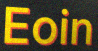
Eoin